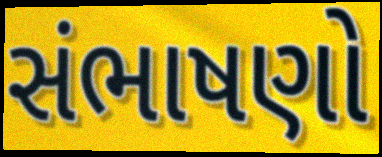
સંભાષણો